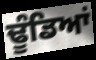
ਢੂੰਡਿਆਂ